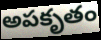
అపకృతం